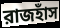
রাজহাঁস